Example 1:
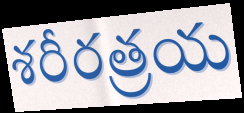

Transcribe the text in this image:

శరీరత్రయ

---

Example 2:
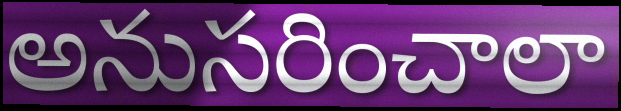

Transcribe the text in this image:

అనుసరించాలా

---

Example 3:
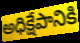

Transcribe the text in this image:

అధిక్షేపానికి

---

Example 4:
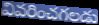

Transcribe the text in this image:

వివరించగలడు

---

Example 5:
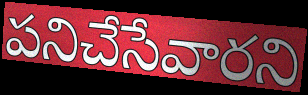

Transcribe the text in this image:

పనిచేసేవారని